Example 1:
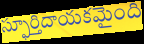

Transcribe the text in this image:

స్ఫూర్తిదాయకమైంది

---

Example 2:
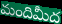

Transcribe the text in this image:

మందిమీద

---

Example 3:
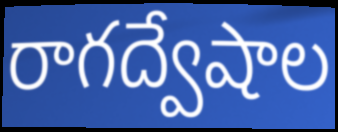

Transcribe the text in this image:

రాగద్వేషాల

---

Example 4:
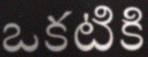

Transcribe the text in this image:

ఒకటికి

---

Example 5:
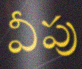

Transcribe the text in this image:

వీపు